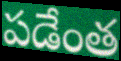
పడేంత